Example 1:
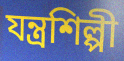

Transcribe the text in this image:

যন্ত্রশিল্পী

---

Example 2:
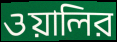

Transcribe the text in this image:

ওয়ালির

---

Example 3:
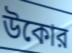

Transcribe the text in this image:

উকোর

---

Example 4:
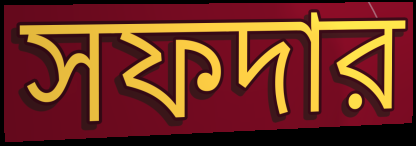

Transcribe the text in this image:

সফদার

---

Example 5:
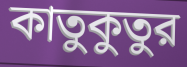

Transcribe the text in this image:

কাতুকুতুর